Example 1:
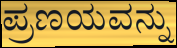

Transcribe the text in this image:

ಪ್ರಣಯವನ್ನು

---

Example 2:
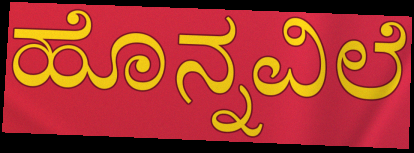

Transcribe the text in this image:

ಹೊನ್ನವಿಲೆ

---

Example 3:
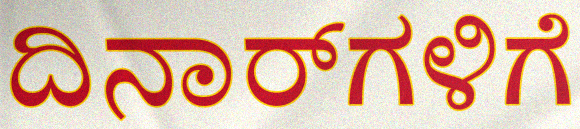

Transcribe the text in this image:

ದಿನಾರ್‌ಗಳಿಗೆ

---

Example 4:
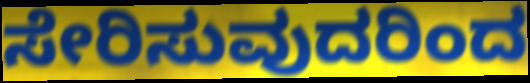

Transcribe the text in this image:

ಸೇರಿಸುವುದರಿಂದ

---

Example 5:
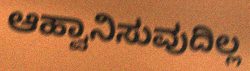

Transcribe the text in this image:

ಆಹ್ವಾನಿಸುವುದಿಲ್ಲ